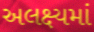
અલક્ષ્યમાં